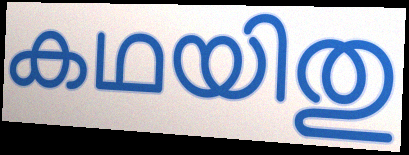
കഥയിതു